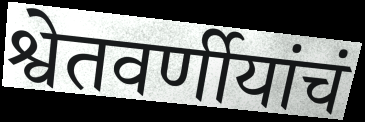
श्वेतवर्णीयांचं